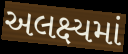
અલક્ષ્યમાં